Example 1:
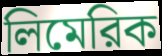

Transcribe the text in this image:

লিমেরিক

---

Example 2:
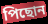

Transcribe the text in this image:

পিছোন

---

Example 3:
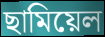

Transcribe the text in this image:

ছামিয়েল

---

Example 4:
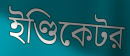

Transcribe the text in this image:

ইণ্ডিকেটর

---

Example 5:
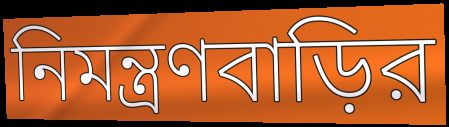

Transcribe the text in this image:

নিমন্ত্রণবাড়ির